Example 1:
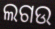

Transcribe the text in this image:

ଲଗଉ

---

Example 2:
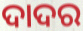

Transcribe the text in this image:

ଦାଦର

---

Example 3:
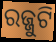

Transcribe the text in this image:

ରଜ୍ଜୁଟି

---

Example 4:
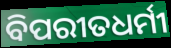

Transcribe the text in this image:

ବିପରୀତଧର୍ମୀ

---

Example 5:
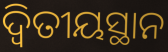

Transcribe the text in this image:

ଦ୍ୱିତୀୟସ୍ଥାନ